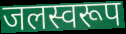
जलस्वरूप